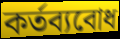
কর্তব্যবোধ